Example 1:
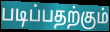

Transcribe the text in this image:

படிப்பதற்கும்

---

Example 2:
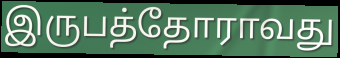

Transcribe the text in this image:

இருபத்தோராவது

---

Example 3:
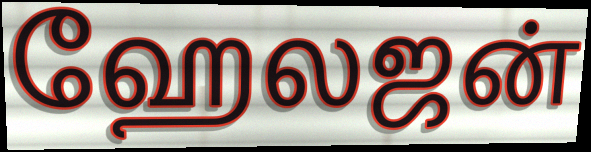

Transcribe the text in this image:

ஹேலஜன்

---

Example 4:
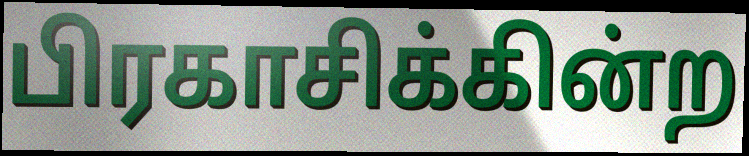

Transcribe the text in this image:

பிரகாசிக்கின்ற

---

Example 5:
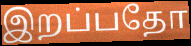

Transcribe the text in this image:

இறப்பதோ